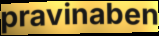
pravinaben